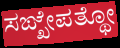
ಸಙ್ಖೇಪತ್ಥೋ